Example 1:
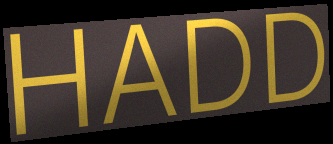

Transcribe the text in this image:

HADD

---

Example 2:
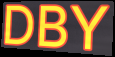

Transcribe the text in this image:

DBY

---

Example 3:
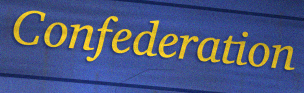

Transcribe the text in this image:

Confederation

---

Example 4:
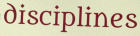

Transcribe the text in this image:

disciplines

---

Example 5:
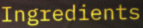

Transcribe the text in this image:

Ingredients